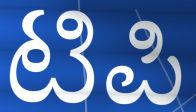
ಟಿಪಿ